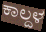
ಕಾಲ್ದಳ